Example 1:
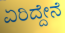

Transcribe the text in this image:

ಏರಿದ್ದೇನೆ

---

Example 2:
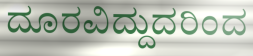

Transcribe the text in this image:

ದೂರವಿದ್ದುದರಿಂದ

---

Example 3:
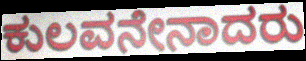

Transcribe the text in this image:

ಕುಲವನೇನಾದರು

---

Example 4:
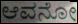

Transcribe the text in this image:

ಆವನೋ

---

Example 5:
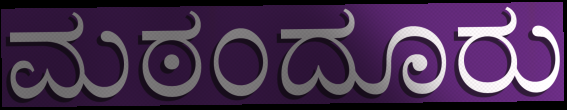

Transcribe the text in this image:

ಮಠಂದೂರು